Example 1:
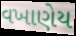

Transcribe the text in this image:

વખાણેય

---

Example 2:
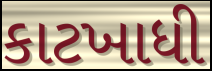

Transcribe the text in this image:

કાટખાધી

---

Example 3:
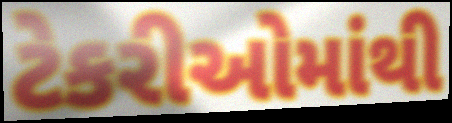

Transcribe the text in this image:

ટેકરીઓમાંથી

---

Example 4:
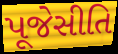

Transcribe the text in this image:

પૂજેસીતિ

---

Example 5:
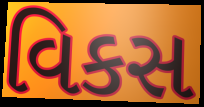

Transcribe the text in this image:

વિકસ